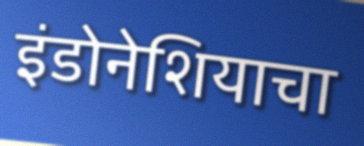
इंडोनेशियाचा